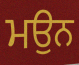
ਮਉਨ